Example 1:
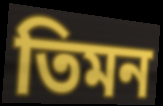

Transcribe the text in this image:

তিমন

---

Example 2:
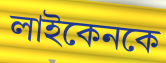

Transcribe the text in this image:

লাইকেনকে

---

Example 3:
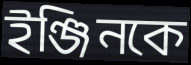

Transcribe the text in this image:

ইঞ্জিনকে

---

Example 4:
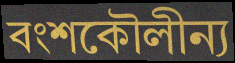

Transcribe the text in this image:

বংশকৌলীন্য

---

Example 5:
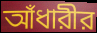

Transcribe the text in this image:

আঁধারীর